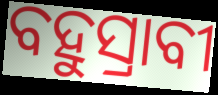
ବହୁସ୍ରାବୀ